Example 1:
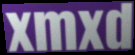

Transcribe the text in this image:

xmxd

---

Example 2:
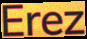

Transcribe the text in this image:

Erez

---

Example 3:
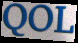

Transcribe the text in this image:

QOL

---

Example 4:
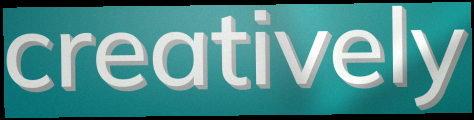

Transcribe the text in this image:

creatively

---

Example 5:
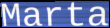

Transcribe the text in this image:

Marta